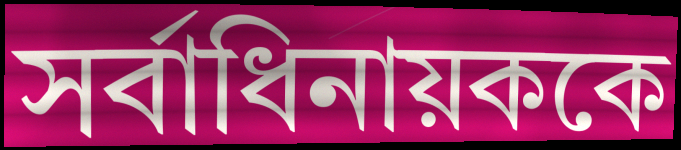
সর্বাধিনায়ককে